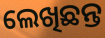
ଲେଖିଛନ୍ତ